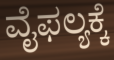
ವೈಫಲ್ಯಕ್ಕೆ